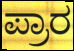
ಪ್ರಾರ